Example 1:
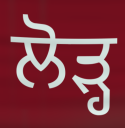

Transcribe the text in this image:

ਲੋੜ੍ਹ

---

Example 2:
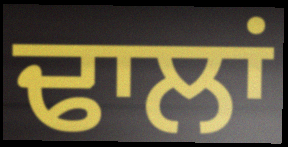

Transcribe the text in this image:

ਢਾਲਾਂ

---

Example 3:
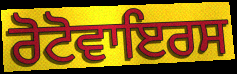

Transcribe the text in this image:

ਰੋਟੋਵਾਇਰਸ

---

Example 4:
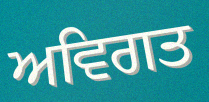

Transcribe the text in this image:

ਅਵਿਗਤ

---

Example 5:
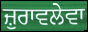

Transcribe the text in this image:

ਜ਼ੁਰਾਵਲੇਵਾ